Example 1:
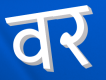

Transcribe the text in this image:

वर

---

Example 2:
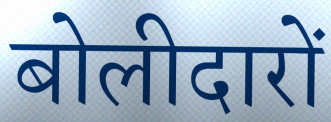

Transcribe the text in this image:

बोलीदारों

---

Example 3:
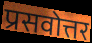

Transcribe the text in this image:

प्रसवोत्तर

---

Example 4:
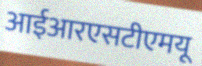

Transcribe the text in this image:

आईआरएसटीएमयू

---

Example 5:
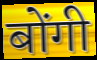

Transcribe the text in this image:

बोंगी